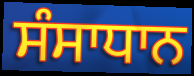
ਸੰਸਾਧਾਨ